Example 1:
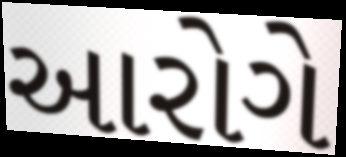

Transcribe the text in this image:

આરોગે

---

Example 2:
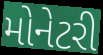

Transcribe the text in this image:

મોનેટરી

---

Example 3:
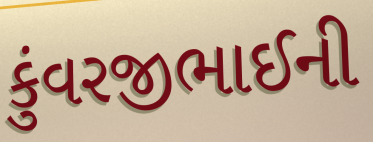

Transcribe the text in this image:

કુંવરજીભાઈની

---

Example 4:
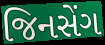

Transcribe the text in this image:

જિનસેંગ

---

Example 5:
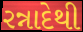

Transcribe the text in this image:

રન્નાદેથી